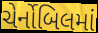
ચેર્નોબિલમાં